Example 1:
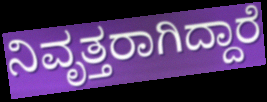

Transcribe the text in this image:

ನಿವೃತ್ತರಾಗಿದ್ದಾರೆ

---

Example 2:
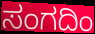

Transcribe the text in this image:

ಸಂಗದಿಂ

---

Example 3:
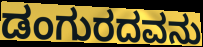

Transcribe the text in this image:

ಡಂಗುರದವನು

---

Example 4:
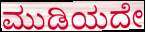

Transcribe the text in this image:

ಮುಡಿಯದೇ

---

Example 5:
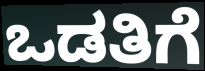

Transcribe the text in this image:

ಒಡತಿಗೆ